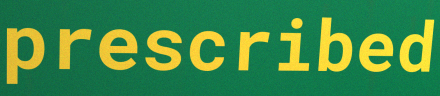
prescribed